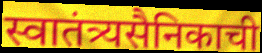
स्वातंत्र्यसैनिकाची